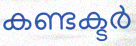
കണ്ടക്ടർ